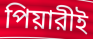
পিয়ারীই